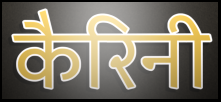
कैरिनी